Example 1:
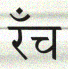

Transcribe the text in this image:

रँच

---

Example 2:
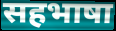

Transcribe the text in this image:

सहभाषा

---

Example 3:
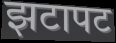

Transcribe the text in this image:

झटापट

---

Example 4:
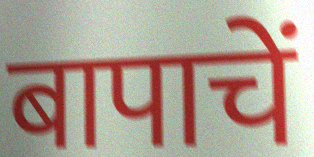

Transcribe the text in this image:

बापाचें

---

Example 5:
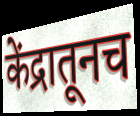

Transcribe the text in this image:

केंद्रातूनच